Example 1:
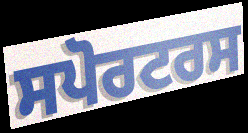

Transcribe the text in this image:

ਸਪੋਰਟਰਸ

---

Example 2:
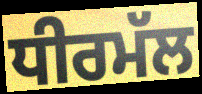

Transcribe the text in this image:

ਧੀਰਮੱਲ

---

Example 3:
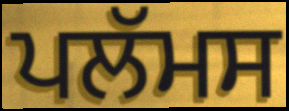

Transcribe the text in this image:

ਪਲੱਮਸ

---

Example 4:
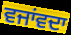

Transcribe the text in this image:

ਵਜਾਂਵਦਾ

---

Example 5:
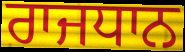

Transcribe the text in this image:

ਰਾਜਧਾਨ